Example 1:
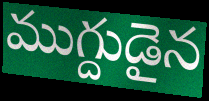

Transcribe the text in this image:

ముగ్దుడైన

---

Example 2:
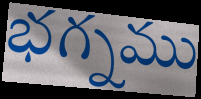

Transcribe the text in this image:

భగ్నము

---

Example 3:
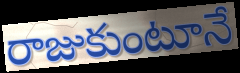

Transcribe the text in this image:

రాజుకుంటూనే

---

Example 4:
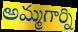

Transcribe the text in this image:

అమ్మగార్ని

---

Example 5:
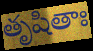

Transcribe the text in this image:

తృషితాః